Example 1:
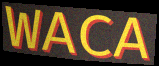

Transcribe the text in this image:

WACA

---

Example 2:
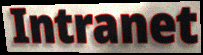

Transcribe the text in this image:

Intranet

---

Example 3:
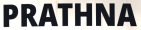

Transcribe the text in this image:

PRATHNA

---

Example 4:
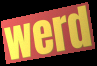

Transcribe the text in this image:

werd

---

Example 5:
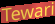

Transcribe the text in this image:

Tewari